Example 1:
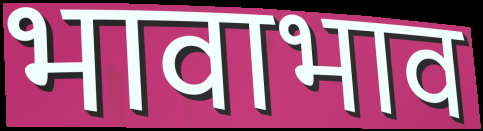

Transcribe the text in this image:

भावाभाव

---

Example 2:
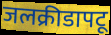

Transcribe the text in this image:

जलक्रीडापटू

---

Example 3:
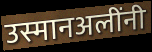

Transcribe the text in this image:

उस्मानअलींनी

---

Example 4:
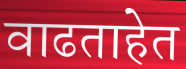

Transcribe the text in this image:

वाढताहेत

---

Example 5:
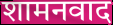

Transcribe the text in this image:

शामनवाद